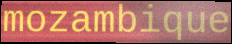
mozambique